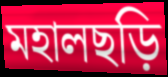
মহালছড়ি